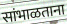
सांभाळताना